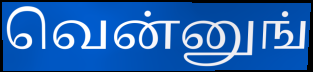
வென்னுங்